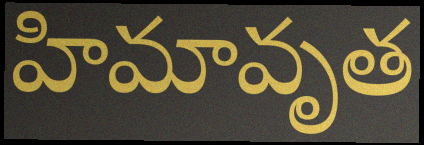
హిమావృత